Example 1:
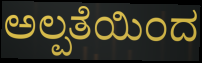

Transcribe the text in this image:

ಅಲ್ಪತೆಯಿಂದ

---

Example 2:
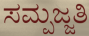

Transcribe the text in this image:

ಸಮ್ಪಜ್ಜತಿ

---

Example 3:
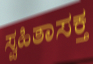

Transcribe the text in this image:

ಸ್ವಹಿತಾಸಕ್ತ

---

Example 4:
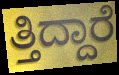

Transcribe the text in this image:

ತ್ತಿದ್ದಾರೆ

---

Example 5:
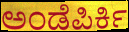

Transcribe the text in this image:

ಅಂಡೆಪಿರ್ಕಿ